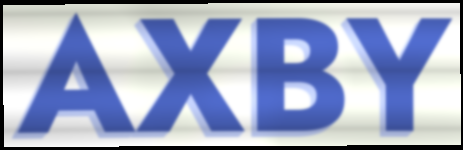
AXBY